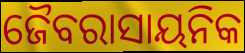
ଜୈବରାସାୟନିକ